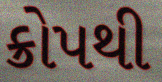
ક્રોપથી